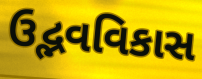
ઉદ્ભવવિકાસ